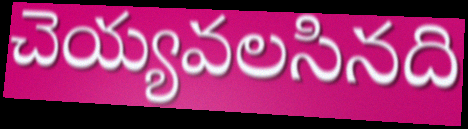
చెయ్యవలసినది